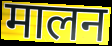
मालन